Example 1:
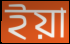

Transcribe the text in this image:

ইয়া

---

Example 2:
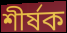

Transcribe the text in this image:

শীৰ্ষক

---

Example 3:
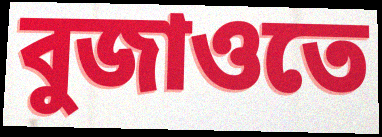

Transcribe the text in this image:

বুজাওতে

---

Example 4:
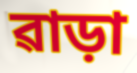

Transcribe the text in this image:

ৱাড়া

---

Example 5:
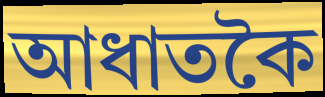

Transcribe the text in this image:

আধাতকৈ